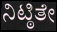
ನಿಟ್ಠಿತೇ